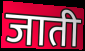
जाती